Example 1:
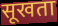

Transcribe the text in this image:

सूखता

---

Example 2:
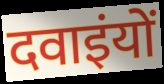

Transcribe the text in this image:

दवाइंयों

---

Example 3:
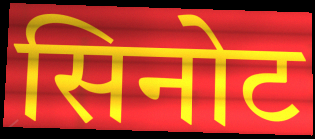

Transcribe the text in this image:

सिनोट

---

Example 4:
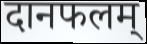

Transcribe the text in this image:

दानफलम्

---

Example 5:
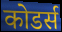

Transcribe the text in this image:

कोडर्स